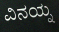
ವಿನಯ್ನ